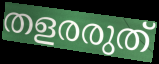
തളരരുത്